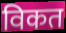
विकत